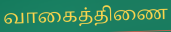
வாகைத்திணை